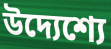
উদ্যেশ্যে